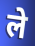
ले